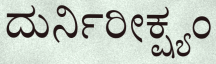
ದುರ್ನಿರೀಕ್ಷ್ಯಂ